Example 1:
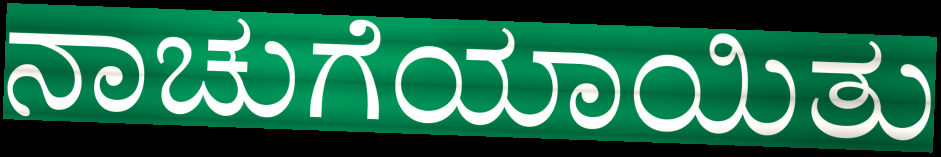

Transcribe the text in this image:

ನಾಚುಗೆಯಾಯಿತು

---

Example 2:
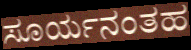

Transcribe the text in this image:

ಸೂರ್ಯನಂತಹ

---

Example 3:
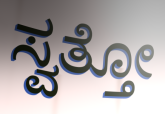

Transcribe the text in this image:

ಸ್ವತ್ತೋ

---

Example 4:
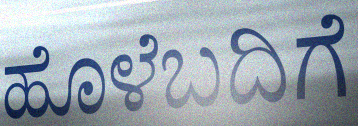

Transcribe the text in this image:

ಹೊಳೆಬದಿಗೆ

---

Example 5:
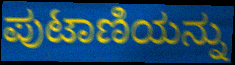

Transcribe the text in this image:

ಪುಟಾಣಿಯನ್ನು